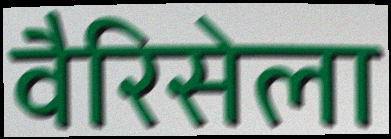
वैरिसेला